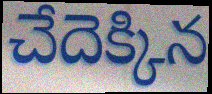
చేదెక్కిన